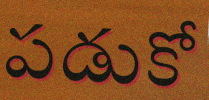
పడుకో